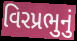
વિરપ્રભુનું